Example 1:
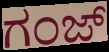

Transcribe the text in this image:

ಗಂಜ್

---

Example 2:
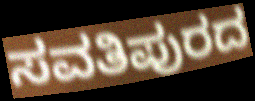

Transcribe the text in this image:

ಸವತಿಪುರದ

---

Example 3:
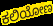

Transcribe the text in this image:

ಕಲಿಯೋಣ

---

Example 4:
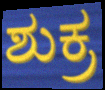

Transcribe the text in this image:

ಶುಕ್ರ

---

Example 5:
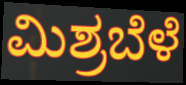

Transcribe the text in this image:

ಮಿಶ್ರಬೆಳೆ